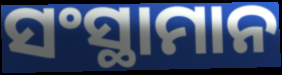
ସଂସ୍ଥାମାନ